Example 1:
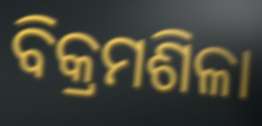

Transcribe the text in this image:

ବିକ୍ରମଶିଳା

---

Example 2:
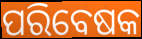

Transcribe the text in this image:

ପରିବେଷକ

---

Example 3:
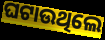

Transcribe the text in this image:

ଘଟାଉଥିଲେ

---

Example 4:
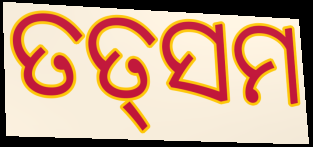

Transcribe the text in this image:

ତତ୍‍ସମ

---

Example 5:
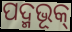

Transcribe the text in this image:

ପଦ୍ମଭୂକ୍